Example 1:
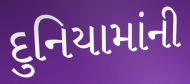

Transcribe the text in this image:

દુનિયામાંની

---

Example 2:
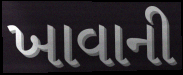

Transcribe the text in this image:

ખાવાની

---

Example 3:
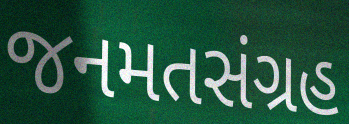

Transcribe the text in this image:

જનમતસંગ્રહ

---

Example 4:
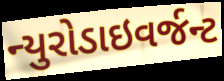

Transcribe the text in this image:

ન્યુરોડાઇવર્જન્ટ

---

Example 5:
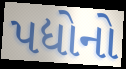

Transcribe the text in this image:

પદ્યોનો